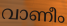
വാണീം